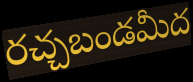
రచ్చబండమీద